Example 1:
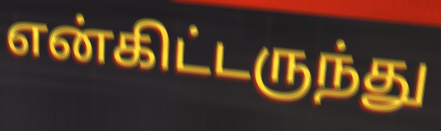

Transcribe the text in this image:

என்கிட்டருந்து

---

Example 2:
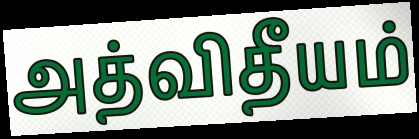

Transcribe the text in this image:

அத்விதீயம்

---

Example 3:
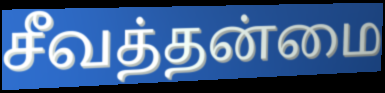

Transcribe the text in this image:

சீவத்தன்மை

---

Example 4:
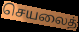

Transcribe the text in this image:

செயலைத்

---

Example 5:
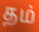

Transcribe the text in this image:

தம்